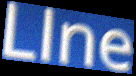
LIne